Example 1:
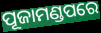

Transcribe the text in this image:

ପୂଜାମଣ୍ଡପରେ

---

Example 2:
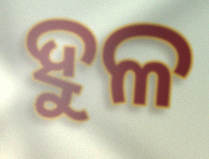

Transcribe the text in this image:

ହୁଳ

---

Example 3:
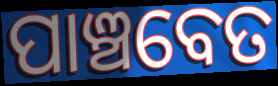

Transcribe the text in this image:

ପାଞ୍ଚବେତ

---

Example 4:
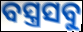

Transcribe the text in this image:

ବସ୍ତ୍ରସବୁ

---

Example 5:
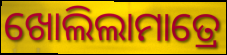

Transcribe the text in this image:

ଖୋଲିଲାମାତ୍ରେ